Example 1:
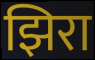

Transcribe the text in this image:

झिरा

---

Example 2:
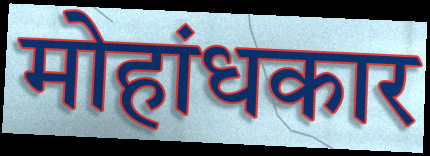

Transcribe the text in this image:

मोहांधकार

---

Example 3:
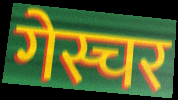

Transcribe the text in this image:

गेस्चर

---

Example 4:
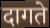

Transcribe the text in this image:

दागते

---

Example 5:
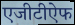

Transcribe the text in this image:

एजीटीऐफ